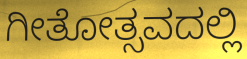
ಗೀತೋತ್ಸವದಲ್ಲಿ